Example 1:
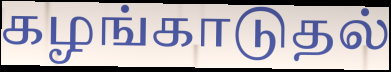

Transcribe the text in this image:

கழங்காடுதல்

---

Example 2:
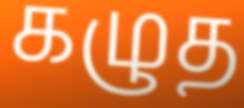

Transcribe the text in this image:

கழுத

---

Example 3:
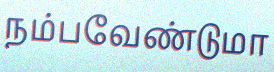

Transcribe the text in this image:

நம்பவேண்டுமா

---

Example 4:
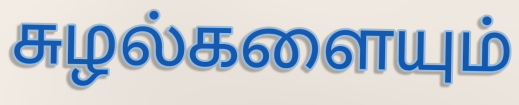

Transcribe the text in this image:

சுழல்களையும்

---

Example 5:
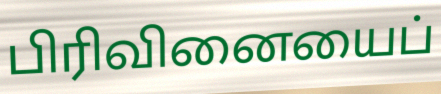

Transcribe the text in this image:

பிரிவினையைப்